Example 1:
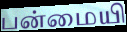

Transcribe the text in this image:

பன்மையி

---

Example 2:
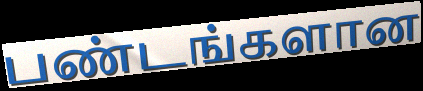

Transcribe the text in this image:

பண்டங்களான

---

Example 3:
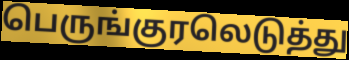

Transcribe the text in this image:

பெருங்குரலெடுத்து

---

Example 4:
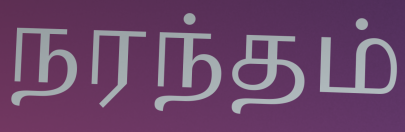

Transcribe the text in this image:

நரந்தம்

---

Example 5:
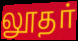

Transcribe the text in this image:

லூதர்